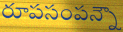
రూపసంపన్నౌ